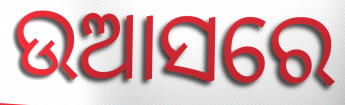
ଉଆସରେ